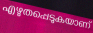
എഴുതപ്പെടുകയാണ്